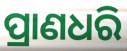
ପ୍ରାଣଧରି